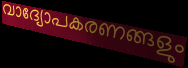
വാദ്യോപകരണങ്ങളും